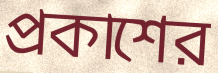
প্রকাশের